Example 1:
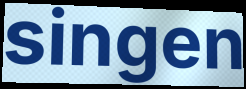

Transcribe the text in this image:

singen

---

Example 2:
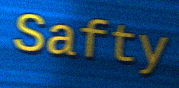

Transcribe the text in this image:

Safty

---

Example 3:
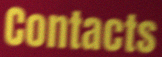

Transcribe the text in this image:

Contacts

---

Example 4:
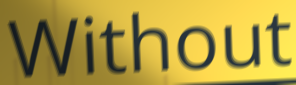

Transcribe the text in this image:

Without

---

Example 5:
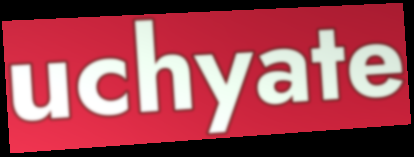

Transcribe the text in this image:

uchyate